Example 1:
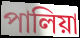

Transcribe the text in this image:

পালিয়া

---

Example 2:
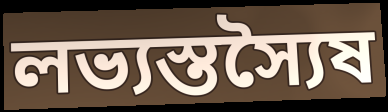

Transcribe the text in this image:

লভ্যস্তস্যৈষ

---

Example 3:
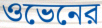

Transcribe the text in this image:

ওভেনের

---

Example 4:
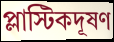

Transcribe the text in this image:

প্লাস্টিকদূষণ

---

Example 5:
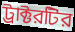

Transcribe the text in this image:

ট্রাক্টরটির